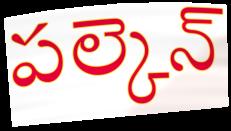
పల్కెన్